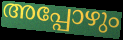
അപ്പോഴും